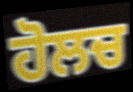
ਹੋਲਚ